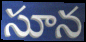
సూన